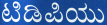
ಟಿಡಿಪಿಯು